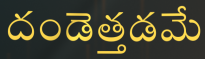
దండెత్తడమే